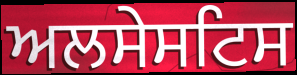
ਅਲਸੇਸਟਿਸ